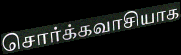
சொர்க்கவாசியாக